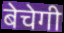
बेचेगी